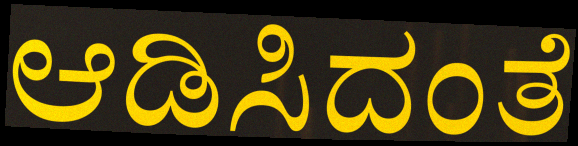
ಆಡಿಸಿದಂತೆ